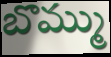
బొమ్ము